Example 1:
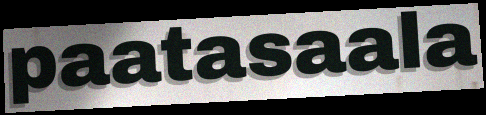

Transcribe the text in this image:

paatasaala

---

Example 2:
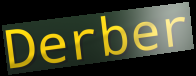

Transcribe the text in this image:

Derber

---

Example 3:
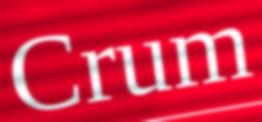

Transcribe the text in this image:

Crum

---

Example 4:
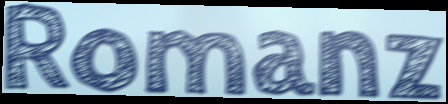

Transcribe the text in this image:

Romanz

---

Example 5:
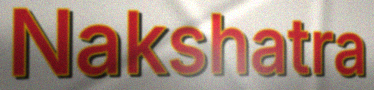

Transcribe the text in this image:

Nakshatra